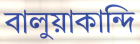
বালুয়াকান্দি